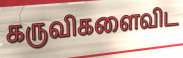
கருவிகளைவிட